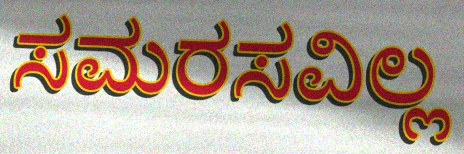
ಸಮರಸವಿಲ್ಲ